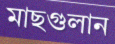
মাছগুলান